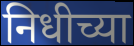
निधीच्या